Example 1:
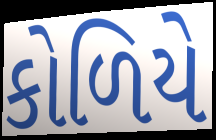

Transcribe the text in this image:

કોળિયે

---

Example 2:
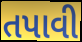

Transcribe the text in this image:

તપાવી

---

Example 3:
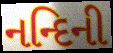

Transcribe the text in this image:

નન્દિની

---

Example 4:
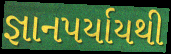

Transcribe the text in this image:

જ્ઞાનપર્યાયથી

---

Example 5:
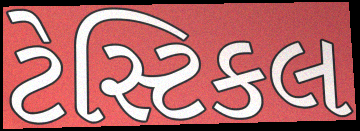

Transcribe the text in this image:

ટેસ્ટિકલ